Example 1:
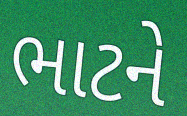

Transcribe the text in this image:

ભાટને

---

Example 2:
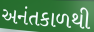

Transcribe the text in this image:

અનંતકાળથી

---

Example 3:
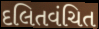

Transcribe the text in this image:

દલિતવંચિત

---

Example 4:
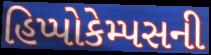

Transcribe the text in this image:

હિપ્પોકેમ્પસની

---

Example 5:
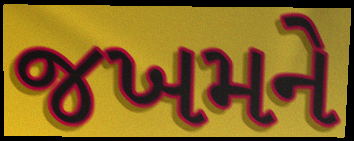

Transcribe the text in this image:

જખમને